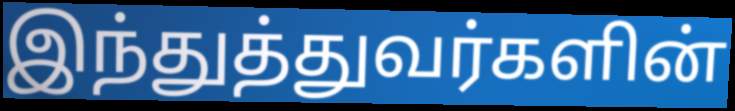
இந்துத்துவர்களின்